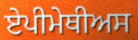
ਏਪੀਮੇਥੀਅਸ